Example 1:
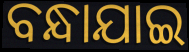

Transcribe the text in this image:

ବନ୍ଧାଯାଇ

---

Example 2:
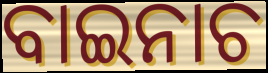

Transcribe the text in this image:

ବାଇନାଚ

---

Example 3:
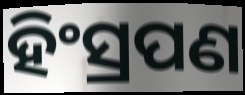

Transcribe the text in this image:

ହିଂସ୍ରପଣ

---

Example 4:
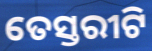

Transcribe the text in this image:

ତେସ୍ତରୀଟି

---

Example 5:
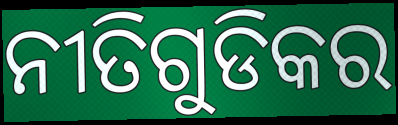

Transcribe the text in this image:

ନୀତିଗୁଡିକର